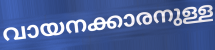
വായനക്കാരനുള്ള